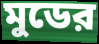
মুডের